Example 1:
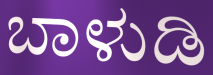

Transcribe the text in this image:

ಬಾಳುಡಿ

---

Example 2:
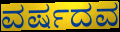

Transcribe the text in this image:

ವರ್ಷದವ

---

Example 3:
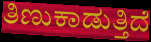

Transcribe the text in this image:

ತಿಣುಕಾಡುತ್ತಿದೆ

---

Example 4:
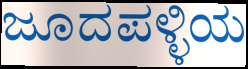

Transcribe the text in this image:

ಜೂದಪಳ್ಳಿಯ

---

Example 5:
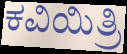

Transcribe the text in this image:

ಕವಿಯಿತ್ರಿ